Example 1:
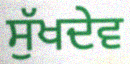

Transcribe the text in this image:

ਸੁੱਖਦੇਵ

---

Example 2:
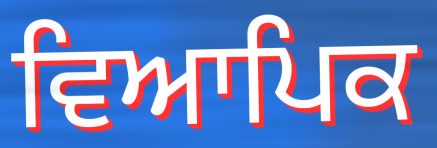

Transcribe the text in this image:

ਵਿਆਪਿਕ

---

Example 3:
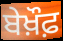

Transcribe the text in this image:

ਬੇਖ਼ੌਫ਼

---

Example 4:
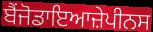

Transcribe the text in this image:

ਬੈਂਜੋਡਾਇਆਜ਼ੇਪੀਨਸ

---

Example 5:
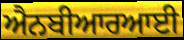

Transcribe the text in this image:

ਐਨਬੀਆਰਆਈ